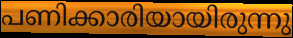
പണിക്കാരിയായിരുന്നു